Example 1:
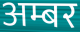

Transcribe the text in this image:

अम्बर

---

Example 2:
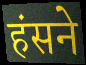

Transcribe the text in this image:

हंसने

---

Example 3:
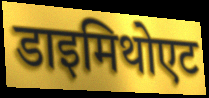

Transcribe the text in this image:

डाइमिथोएट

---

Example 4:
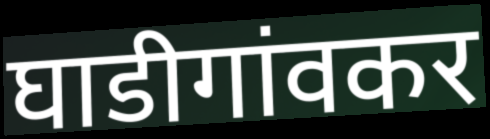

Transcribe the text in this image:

घाडीगांवकर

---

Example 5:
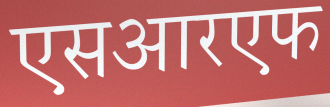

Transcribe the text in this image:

एसआरएफ